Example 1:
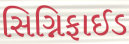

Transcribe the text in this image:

સિગ્નિફાઈડ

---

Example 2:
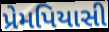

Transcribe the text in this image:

પ્રેમપિયાસી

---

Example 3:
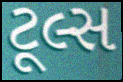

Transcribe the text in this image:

ટૂલ્સ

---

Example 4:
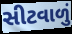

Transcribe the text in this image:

સીટવાળું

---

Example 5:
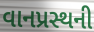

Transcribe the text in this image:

વાનપ્રસ્થની